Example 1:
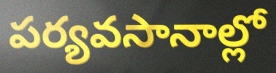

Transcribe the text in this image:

పర్యవసానాల్లో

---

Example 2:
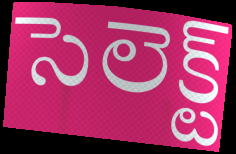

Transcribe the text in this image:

సెలెక్ట్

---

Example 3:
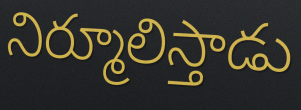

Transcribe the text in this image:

నిర్మూలిస్తాడు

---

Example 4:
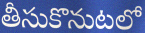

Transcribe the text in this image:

తీసుకొనుటలో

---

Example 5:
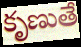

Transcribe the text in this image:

కృణుతే